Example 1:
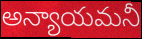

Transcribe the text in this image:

అన్యాయమనీ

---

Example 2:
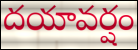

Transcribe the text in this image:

దయావర్షం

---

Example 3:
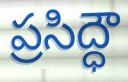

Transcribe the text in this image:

ప్రసిద్ధౌ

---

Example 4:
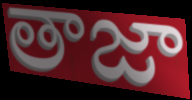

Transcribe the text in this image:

తాజా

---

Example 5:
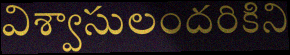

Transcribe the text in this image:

విశ్వాసులందరికిని